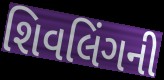
શિવલિંગની